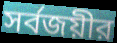
সর্বজয়ীর